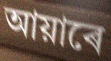
আয়াৰে